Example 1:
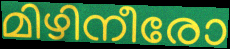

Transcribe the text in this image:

മിഴിനീരോ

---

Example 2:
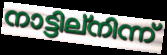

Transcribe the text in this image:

നാട്ടില്നിന്ന്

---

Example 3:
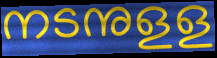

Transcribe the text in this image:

നടനുളള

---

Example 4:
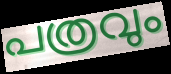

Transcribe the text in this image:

പത്രവും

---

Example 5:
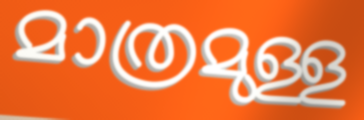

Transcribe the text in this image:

മാത്രമുള്ള